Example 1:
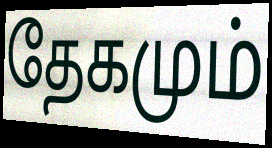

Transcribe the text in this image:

தேகமும்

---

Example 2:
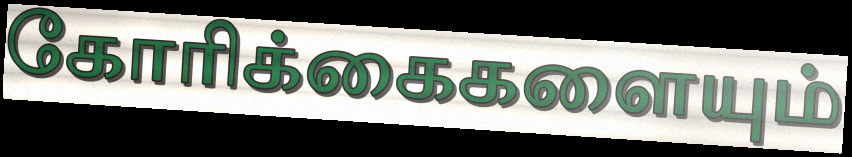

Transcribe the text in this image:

கோரிக்கைகளையும்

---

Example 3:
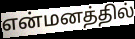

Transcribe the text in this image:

என்மனத்தில்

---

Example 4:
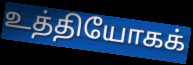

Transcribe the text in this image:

உத்தியோகக்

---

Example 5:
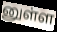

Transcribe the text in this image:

னுள்ள